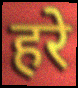
हरे